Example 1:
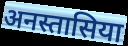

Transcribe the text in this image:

अनस्तासिया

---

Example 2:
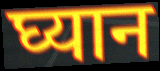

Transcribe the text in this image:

घ्यान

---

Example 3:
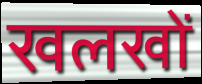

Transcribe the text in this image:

खलखों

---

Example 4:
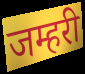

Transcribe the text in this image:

जम्हरी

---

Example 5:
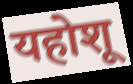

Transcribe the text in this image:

यहोशू